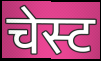
चेस्ट